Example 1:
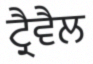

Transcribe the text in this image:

ਟ੍ਰੈਵੈਲ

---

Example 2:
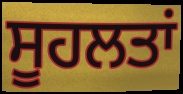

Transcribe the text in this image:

ਸੂਹਲਤਾਂ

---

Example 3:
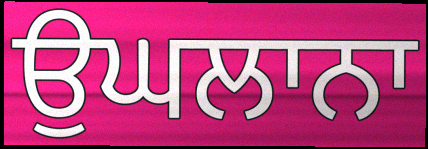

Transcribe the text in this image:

ਉਘਲਾਨਾ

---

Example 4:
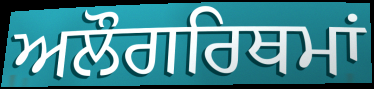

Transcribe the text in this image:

ਅਲੌਗਰਿਥਮਾਂ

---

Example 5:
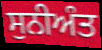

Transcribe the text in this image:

ਸੁਨੀਅੰਤ